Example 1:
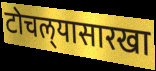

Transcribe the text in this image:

टोचल्यासारखा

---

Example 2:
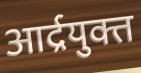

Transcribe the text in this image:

आर्द्रयुक्त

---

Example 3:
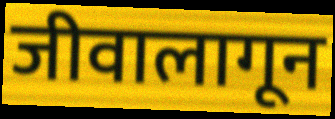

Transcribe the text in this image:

जीवालागून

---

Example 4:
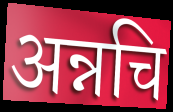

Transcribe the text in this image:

अन्नचि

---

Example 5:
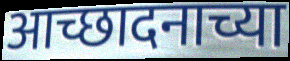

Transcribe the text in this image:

आच्छादनाच्या